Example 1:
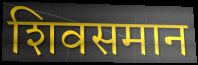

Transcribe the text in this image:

शिवसमान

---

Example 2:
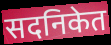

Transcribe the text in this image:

सदनिकेत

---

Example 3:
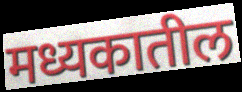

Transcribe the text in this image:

मध्यकातील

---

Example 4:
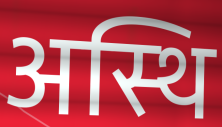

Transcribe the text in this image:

अस्थि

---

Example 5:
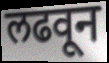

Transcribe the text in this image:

लढवून